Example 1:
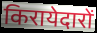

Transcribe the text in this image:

किरायेदारों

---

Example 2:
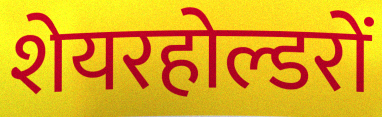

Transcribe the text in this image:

शेयरहोल्डरों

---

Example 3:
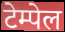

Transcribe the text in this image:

टेम्पेल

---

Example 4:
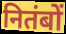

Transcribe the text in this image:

नितंबों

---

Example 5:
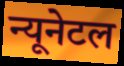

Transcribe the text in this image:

न्यूनेटल